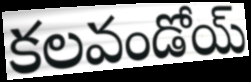
కలవండోయ్